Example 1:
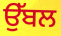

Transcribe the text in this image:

ਉੱਬਲ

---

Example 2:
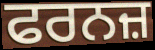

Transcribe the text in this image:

ਫਰਨਜ਼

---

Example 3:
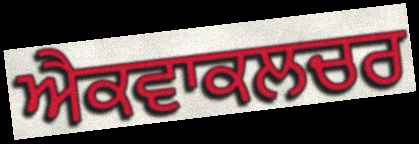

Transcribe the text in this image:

ਐਕਵਾਕਲਚਰ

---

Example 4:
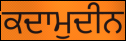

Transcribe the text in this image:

ਕਦਾਮੁਦੀਨ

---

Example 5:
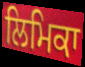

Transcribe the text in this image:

ਲਿਮਿਕਾ